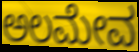
ಅಲಮೇವ